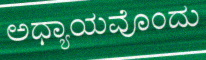
ಅಧ್ಯಾಯವೊಂದು